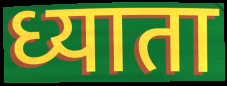
ध्याता